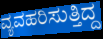
ವ್ಯವಹರಿಸುತ್ತಿದ್ದ